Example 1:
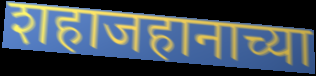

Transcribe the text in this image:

शहाजहानाच्या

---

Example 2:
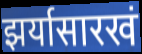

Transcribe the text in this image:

झर्यासारखं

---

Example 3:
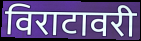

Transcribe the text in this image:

विराटावरी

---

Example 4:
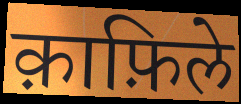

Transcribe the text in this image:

क़ाफ़िले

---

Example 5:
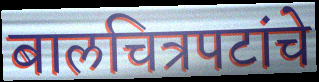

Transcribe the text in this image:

बालचित्रपटांचे